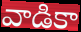
వాడికా